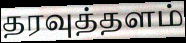
தரவுத்தளம்